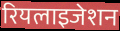
रियलाइजेशन